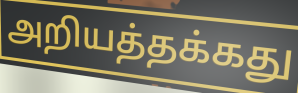
அறியத்தக்கது